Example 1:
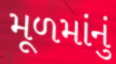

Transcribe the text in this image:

મૂળમાંનું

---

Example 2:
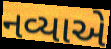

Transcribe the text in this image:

નવ્યાએ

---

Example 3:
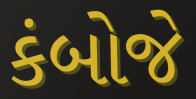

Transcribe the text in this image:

કંબોજે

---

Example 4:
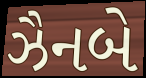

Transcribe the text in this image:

ઝૈનબે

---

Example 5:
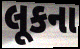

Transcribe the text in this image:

લૂકના